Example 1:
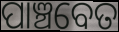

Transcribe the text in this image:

ପାଞ୍ଚବେତ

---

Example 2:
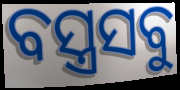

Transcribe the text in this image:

ବସ୍ତ୍ରସବୁ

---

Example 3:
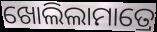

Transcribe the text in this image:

ଖୋଲିଲାମାତ୍ରେ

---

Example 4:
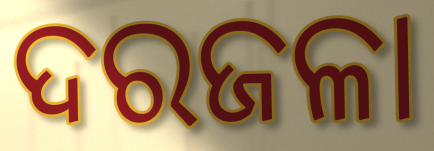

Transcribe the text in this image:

ଦରଜଳା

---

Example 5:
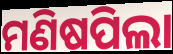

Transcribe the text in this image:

ମଣିଷପିଲା